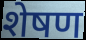
शेषण